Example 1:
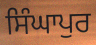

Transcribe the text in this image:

ਸਿੰਘਾਪੁਰ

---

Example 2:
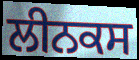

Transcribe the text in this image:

ਲੀਨਕਸ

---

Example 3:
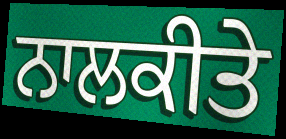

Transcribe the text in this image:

ਨਾਲਕੀਤੇ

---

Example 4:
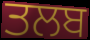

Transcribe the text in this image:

ਤਲਬ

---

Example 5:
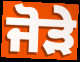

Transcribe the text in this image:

ਜੋੜੇ